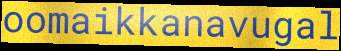
oomaikkanavugal